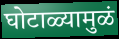
घोटाळ्यामुळं